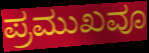
ಪ್ರಮುಖವೂ